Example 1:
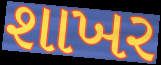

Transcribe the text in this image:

શાખર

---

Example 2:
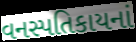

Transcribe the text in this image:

વનસ્પતિકાયનાં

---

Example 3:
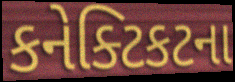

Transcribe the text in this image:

કનેક્ટિકટના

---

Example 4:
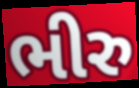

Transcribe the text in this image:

ભીરુ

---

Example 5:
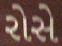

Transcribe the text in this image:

રોસે